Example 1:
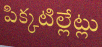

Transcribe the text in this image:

పిక్కటిల్లేట్లు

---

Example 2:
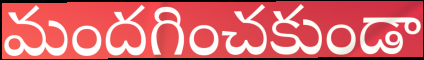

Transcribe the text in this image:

మందగించకుండా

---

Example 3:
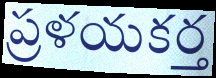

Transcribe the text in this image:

ప్రళయకర్త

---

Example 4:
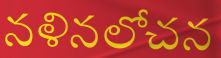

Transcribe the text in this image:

నళినలోచన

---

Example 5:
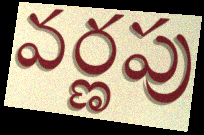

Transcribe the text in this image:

వర్ణపు